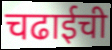
चढाईची